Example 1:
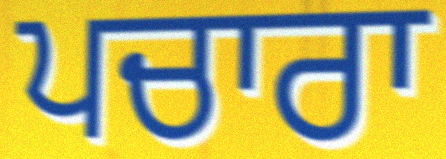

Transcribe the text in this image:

ਪਚਾਰਾ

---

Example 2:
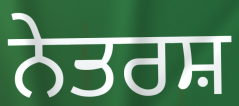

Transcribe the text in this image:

ਨੇਤਰਸ਼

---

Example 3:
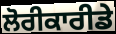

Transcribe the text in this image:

ਲੋਰੀਕਾਰੀਡੇ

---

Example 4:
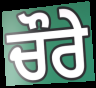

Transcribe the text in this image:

ਚੌਰੇ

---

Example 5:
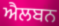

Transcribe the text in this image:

ਐਲਬਨ